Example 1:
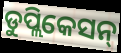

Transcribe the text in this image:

ଡୁପ୍ଲିକେସନ୍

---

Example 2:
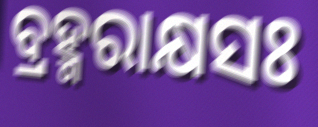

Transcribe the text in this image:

ବ୍ରହ୍ମରାକ୍ଷସଃ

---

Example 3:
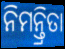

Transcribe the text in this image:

ନିମନ୍ତ୍ରିତା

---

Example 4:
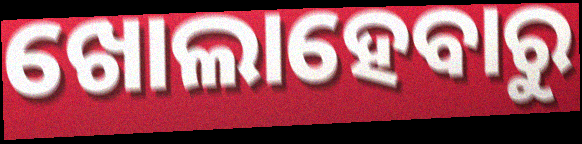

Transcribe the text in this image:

ଖୋଲାହେବାରୁ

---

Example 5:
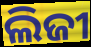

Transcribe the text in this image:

ଲିଜୀ